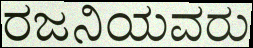
ರಜನಿಯವರು